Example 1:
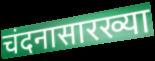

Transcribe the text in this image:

चंदनासारख्या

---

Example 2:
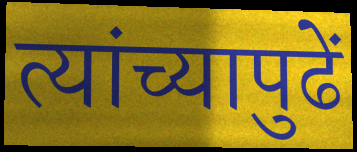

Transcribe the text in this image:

त्यांच्यापुढें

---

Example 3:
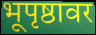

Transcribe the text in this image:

भूपृष्ठावर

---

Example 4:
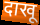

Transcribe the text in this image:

दाखू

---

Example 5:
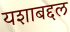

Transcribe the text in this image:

यशाबद्दल